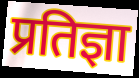
प्रतिज्ञा